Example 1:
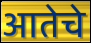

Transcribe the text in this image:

आतेचे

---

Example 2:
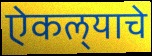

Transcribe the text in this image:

ऐकल्याचे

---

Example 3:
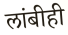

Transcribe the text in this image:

लांबीही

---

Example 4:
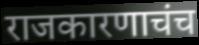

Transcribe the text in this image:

राजकारणाचंच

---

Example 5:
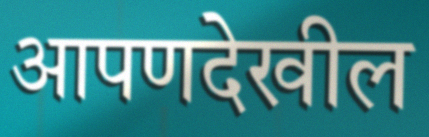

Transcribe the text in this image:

आपणदेखील